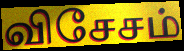
விசேசம்